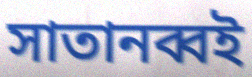
সাতানব্বই